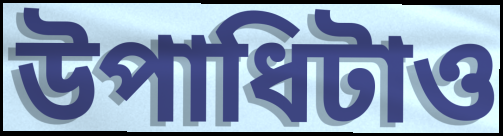
উপাধিটাও